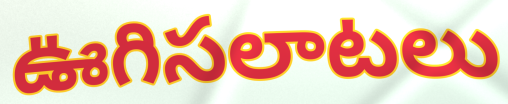
ఊగిసలాటలు